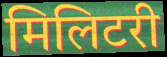
मिलिटरी